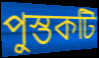
পুস্তকটি